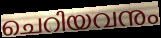
ചെറിയവനും